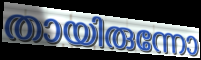
തായിരുന്നോ